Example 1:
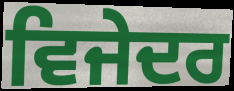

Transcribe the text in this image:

ਵਿਜੇਦਰ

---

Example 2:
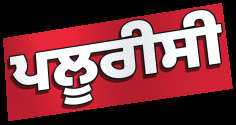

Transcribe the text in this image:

ਪਲੂਰੀਸੀ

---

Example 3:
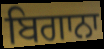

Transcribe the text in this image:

ਬਿਗਾਨਾ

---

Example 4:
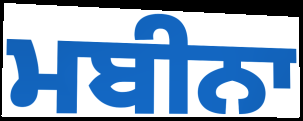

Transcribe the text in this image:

ਮਬੀਨਾ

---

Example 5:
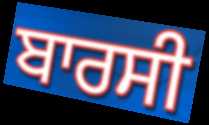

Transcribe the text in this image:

ਬਾਰਸੀ